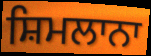
ਸ਼ਿਮਲਾਨਾ